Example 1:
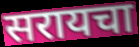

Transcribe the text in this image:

सरायचा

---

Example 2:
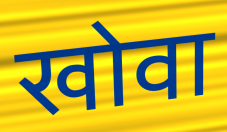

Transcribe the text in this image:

खोवा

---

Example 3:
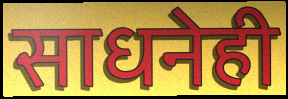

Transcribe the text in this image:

साधनेही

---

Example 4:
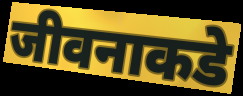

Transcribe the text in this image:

जीवनाकडे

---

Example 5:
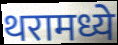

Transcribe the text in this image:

थरामध्ये